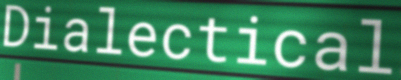
Dialectical